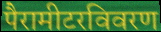
पैरामीटरविवरण